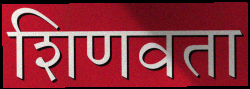
शिणवता